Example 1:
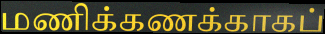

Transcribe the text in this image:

மணிக்கணக்காகப்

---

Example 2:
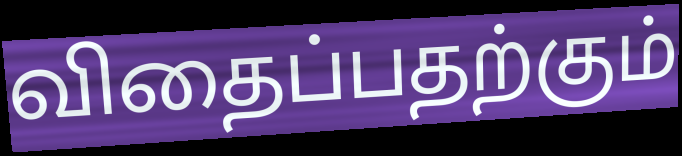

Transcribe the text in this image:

விதைப்பதற்கும்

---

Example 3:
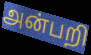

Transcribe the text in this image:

அன்பறி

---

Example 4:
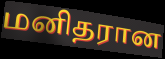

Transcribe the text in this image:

மனிதரான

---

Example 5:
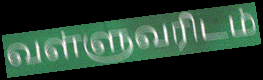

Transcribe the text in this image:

வள்ளுவரிடம்